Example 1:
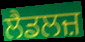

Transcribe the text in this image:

ਲੈਡਲਜ਼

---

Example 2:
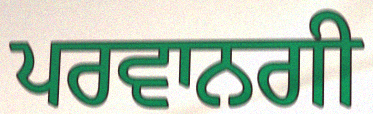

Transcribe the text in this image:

ਪਰਵਾਨਗੀ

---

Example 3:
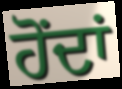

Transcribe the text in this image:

ਹੋਂਦਾਂ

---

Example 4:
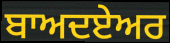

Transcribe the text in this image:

ਬਾਅਦਏਅਰ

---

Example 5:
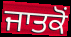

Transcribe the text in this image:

ਜਾਤਕੋਂ